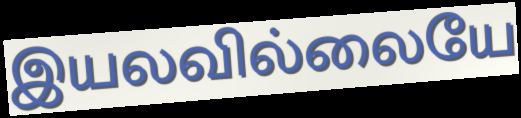
இயலவில்லையே